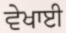
ਵੇਖਾਈ